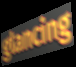
glancing